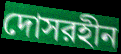
দোসরহীন